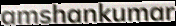
amshankumar